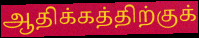
ஆதிக்கத்திற்குக்